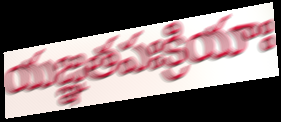
యజ్ఞతపఃక్రియాః